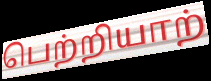
பெற்றியாற்